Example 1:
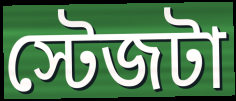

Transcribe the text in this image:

স্টেজটা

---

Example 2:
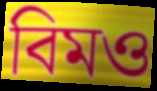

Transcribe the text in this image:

বিমও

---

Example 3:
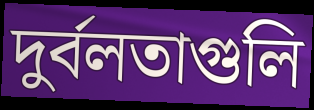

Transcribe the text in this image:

দুর্বলতাগুলি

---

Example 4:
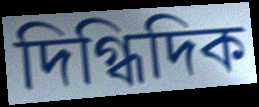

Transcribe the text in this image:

দিগ্ধিদিক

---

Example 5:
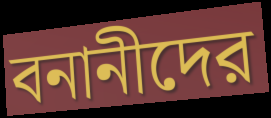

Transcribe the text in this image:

বনানীদের